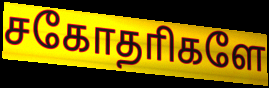
சகோதரிகளே